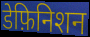
डेफ़िनिशन